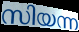
സിയന്ന